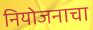
नियोजनाचा